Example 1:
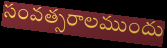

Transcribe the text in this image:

సంవత్సరాలముందు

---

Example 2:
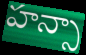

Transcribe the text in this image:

హన్సా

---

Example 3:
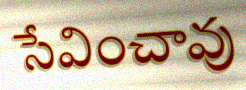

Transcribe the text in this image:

సేవించావు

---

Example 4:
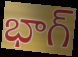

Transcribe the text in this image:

భాగ్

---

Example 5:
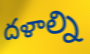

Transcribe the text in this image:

దళాల్ని